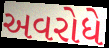
અવરોધે